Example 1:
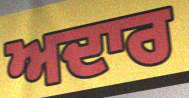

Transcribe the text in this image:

ਅਦਾਰ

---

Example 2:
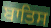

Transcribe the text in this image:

ਬਾਤਿਸ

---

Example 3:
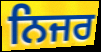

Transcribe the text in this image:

ਨਿਜਰ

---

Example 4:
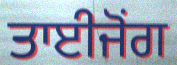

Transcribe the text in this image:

ਤਾਈਜੋਂਗ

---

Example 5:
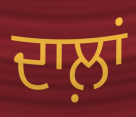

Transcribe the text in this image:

ਦਾਲ਼ਾਂ